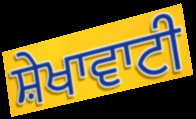
ਸ਼ੇਖਾਵਾਟੀ